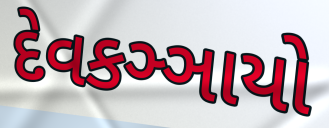
દેવકઞ્ઞાયો